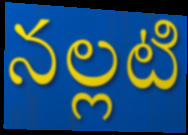
నల్లటి